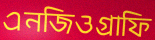
এনজিওগ্রাফি